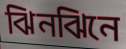
ঝিনঝিনে